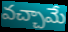
వచ్చామే